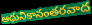
ఆధునికానంతరవాద